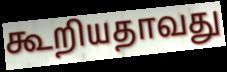
கூறியதாவது